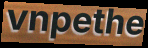
vnpethe